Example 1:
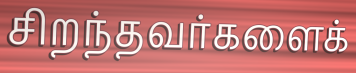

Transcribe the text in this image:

சிறந்தவர்களைக்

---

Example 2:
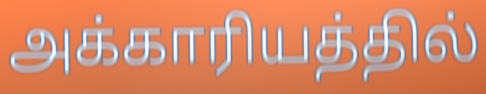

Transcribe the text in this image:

அக்காரியத்தில்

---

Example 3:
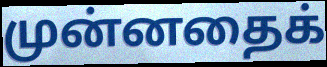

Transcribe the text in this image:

முன்னதைக்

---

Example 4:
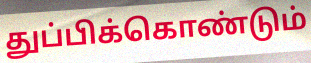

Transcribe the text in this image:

துப்பிக்கொண்டும்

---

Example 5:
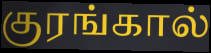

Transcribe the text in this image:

குரங்கால்